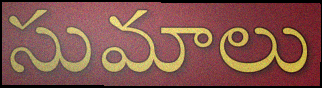
సుమాలు